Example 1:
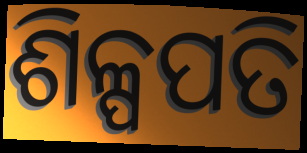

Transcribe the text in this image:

ଶିଳ୍ପପତି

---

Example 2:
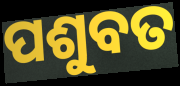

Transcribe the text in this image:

ପଶୁବତ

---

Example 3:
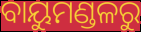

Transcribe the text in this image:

ବାୟୁମଣ୍ଡଳରୁ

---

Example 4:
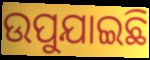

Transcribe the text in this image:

ଉପୁଯାଇଛି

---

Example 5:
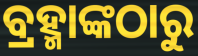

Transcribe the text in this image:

ବ୍ରହ୍ମାଙ୍କଠାରୁ